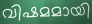
വിഷമമായി